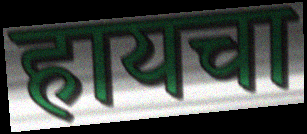
हायचा